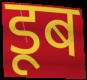
डूब